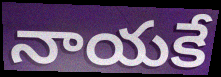
నాయకే